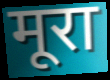
मूरा